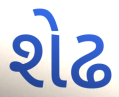
શેઢ